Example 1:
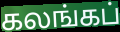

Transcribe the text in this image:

கலங்கப்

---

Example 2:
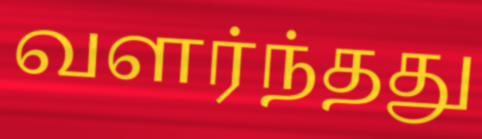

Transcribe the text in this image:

வளர்ந்தது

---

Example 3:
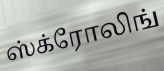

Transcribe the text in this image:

ஸ்க்ரோலிங்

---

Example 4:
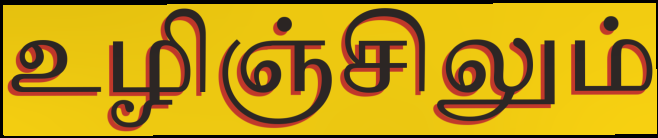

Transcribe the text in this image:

உழிஞ்சிலும்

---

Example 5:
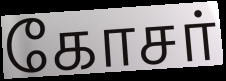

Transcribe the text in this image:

கோசர்